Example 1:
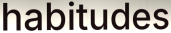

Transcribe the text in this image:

habitudes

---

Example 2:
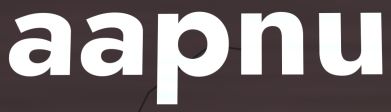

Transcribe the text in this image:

aapnu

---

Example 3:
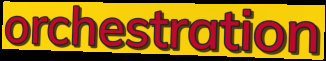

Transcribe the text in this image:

orchestration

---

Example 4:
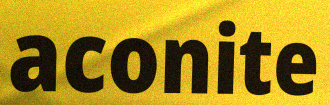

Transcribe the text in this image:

aconite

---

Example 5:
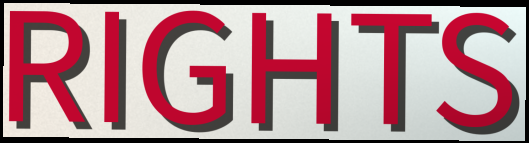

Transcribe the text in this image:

RIGHTS